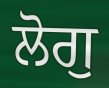
ਲੋਗੁ